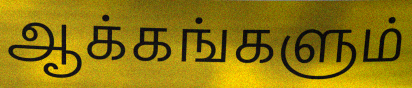
ஆக்கங்களும்